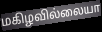
மகிழவில்லையா